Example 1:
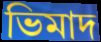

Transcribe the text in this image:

ভিমাদ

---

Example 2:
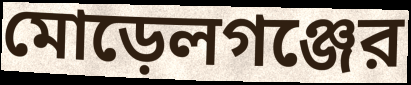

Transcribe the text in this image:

মোড়েলগঞ্জের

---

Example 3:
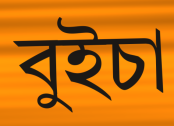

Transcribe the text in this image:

বুইচা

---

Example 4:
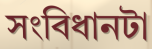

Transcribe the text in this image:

সংবিধানটা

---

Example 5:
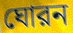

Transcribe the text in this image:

ঘোরন